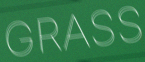
GRASS